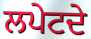
ਲਪੇਟਦੇ